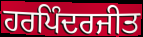
ਹਰਪਿੰਦਰਜੀਤ